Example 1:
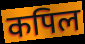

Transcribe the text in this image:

कपिल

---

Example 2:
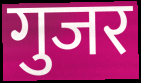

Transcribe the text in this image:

गुजर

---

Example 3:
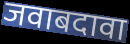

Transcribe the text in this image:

जवाबदावा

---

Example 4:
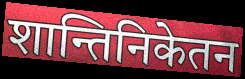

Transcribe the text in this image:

शान्तिनिकेतन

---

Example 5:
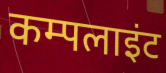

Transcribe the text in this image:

कम्पलाइंट